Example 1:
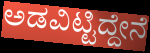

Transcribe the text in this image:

ಅಡವಿಟ್ಟಿದ್ದೇನೆ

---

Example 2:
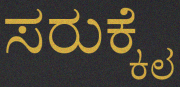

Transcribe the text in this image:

ಸರುಕ್ಕೈ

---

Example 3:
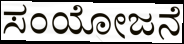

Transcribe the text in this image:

ಸಂಯೋಜನೆ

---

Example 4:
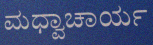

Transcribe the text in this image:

ಮಧ್ವಾಚಾರ್ಯ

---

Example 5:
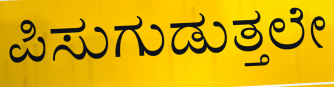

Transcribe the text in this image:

ಪಿಸುಗುಡುತ್ತಲೇ